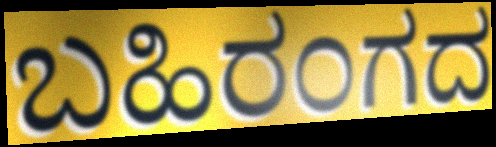
ಬಹಿರಂಗದ